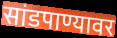
सांडपाण्यावर